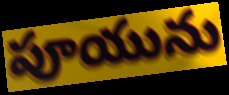
పూయును